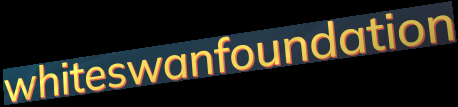
whiteswanfoundation